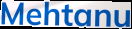
Mehtanu